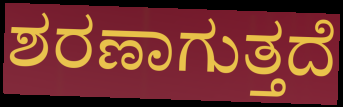
ಶರಣಾಗುತ್ತದೆ